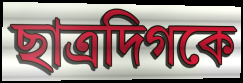
ছাত্রদিগকে